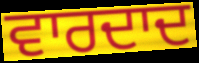
ਵਾਰਦਾਦ